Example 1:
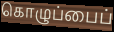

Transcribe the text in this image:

கொழுப்பைப்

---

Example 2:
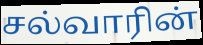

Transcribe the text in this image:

சல்வாரின்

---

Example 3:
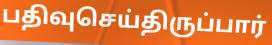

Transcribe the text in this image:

பதிவுசெய்திருப்பார்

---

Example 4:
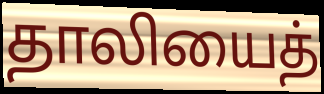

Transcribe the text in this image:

தாலியைத்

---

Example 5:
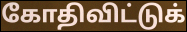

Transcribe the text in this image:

கோதிவிட்டுக்